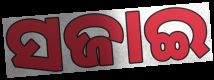
ସଜାଇ